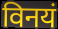
विनयं